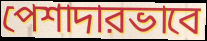
পেশাদারভাবে